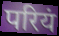
परियं